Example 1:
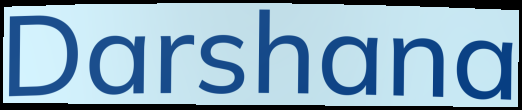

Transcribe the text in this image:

Darshana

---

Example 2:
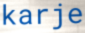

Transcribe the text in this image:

karje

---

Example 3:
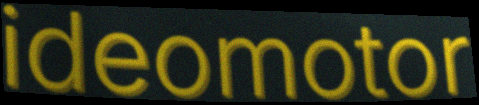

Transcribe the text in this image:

ideomotor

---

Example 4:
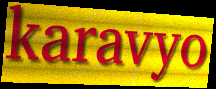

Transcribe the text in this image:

karavyo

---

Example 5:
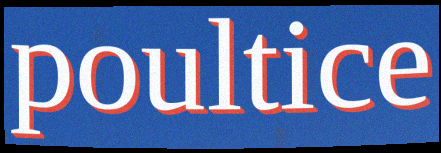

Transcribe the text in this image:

poultice